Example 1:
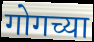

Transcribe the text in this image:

गोगच्या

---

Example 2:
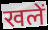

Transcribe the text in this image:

खलें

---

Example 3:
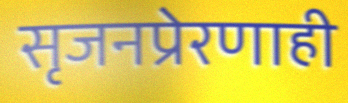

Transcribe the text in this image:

सृजनप्रेरणाही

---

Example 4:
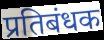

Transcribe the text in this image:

प्रतिबंधक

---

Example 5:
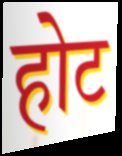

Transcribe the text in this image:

होट